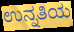
ಉನ್ನತಿಯ